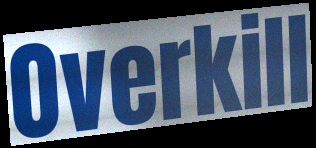
Overkill